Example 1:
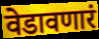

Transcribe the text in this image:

वेडावणारं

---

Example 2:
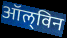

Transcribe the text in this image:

ऑल्विन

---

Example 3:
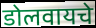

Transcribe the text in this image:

डोलवायचे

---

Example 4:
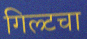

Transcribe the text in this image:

गिल्टचा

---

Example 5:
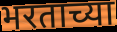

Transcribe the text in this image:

भरताच्या